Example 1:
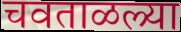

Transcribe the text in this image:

चवताळल्या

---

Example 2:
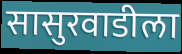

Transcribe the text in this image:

सासुरवाडीला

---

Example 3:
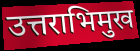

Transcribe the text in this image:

उत्तराभिमुख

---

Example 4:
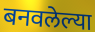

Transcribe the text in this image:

बनवलेल्या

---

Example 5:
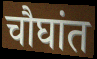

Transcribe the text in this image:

चौघांत